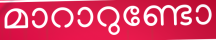
മാറാറുണ്ടോ